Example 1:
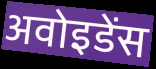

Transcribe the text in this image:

अवोइडेंस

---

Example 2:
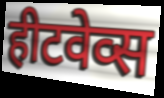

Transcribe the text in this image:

हीटवेव्स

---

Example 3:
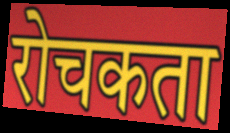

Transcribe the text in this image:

रोचकता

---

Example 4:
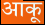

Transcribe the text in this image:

आकू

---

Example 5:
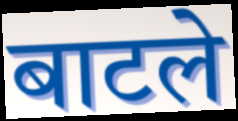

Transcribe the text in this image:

बाटले